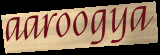
aaroogya